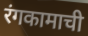
रंगकामाची